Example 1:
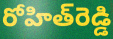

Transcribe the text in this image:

రోహిత్‌రెడ్డి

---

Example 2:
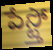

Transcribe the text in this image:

పేస్ట్తో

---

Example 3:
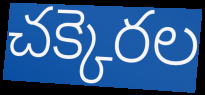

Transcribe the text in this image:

చక్కెరల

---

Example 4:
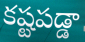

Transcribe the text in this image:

కష్టపడ్డా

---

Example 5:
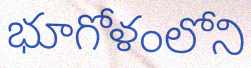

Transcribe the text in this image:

భూగోళంలోని